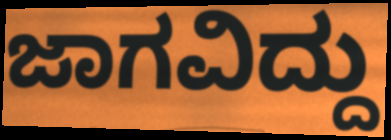
ಜಾಗವಿದ್ದು